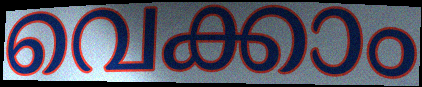
വെക്കാം